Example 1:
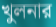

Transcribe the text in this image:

খুলনার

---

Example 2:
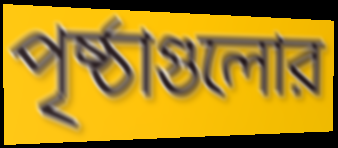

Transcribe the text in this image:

পৃষ্ঠাগুলোর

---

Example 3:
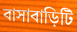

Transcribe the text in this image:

বাসাবাড়িটি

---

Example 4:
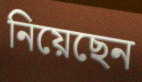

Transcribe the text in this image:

নিয়েছেন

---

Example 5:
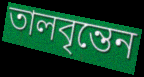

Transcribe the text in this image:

তালবৃন্তেন